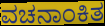
ವಚನಾಂಕಿತ